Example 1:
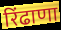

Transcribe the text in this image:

रिंढाणा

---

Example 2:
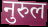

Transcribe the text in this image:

नुरुल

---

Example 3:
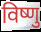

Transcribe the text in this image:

विष्‍णु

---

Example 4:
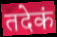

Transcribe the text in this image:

तदेकं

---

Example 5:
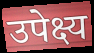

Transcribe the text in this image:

उपेक्ष्य